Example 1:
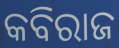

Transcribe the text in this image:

କବିରାଜ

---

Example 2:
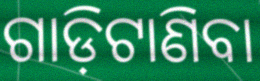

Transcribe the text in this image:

ଗାଡ଼ିଟାଣିବା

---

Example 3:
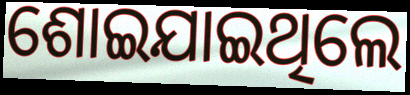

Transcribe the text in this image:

ଶୋଇଯାଇଥିଲେ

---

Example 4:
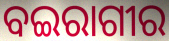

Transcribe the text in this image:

ବଇରାଗୀର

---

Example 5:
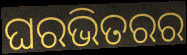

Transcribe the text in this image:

ଘରଭିତରର